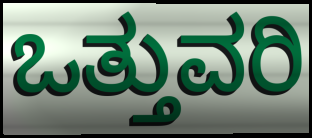
ಒತ್ತುವರಿ